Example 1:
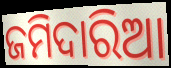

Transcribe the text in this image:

ଜମିଦାରିଆ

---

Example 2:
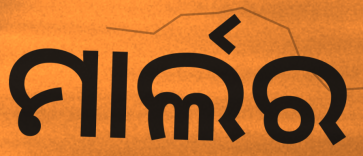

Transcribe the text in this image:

ମାର୍ଲର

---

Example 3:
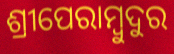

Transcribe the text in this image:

ଶ୍ରୀପେରାମ୍ବୁଦୁର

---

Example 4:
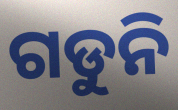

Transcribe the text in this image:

ଗଡୁନି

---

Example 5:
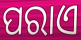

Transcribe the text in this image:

ପରାଏ